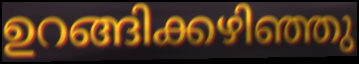
ഉറങ്ങിക്കഴിഞ്ഞു